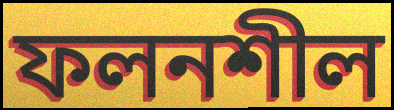
ফলনশীল